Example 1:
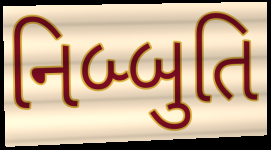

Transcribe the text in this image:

નિબ્બુતિ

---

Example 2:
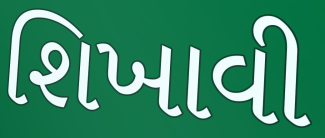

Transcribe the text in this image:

શિખાવી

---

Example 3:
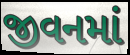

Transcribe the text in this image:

જીવનમાં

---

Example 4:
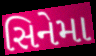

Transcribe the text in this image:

સિનેમા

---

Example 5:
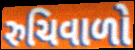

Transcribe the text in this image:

રુચિવાળો